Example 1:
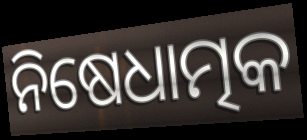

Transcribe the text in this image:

ନିଷେଧାତ୍ମକ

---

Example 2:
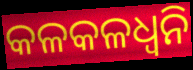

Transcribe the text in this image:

କଳକଳଧ୍ଵନି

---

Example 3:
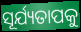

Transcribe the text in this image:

ସୂର୍ଯ୍ୟତାପକୁ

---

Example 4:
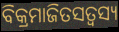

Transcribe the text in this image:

ବିକ୍ରମାଜିତସତ୍ଵସ୍ୟ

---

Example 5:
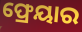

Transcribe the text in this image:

ଫ୍ରେୟାର